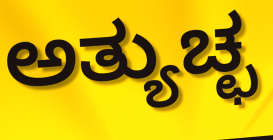
ಅತ್ಯುಚ್ಛ